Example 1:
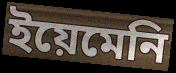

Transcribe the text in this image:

ইয়েমেনি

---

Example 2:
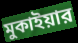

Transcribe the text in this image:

মুকাইয়ার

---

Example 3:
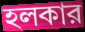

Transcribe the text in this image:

হলকার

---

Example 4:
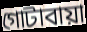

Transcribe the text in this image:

গোটাবায়া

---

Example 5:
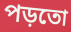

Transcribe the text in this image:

পড়তো